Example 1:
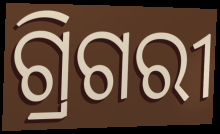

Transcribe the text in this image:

ଗ୍ରିଗରୀ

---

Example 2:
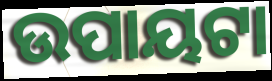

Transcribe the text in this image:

ଉପାୟଟା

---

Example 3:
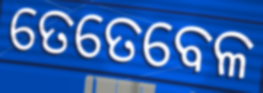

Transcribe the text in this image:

ତେତେବେଳ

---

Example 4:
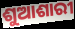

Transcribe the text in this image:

ଶୁଆଶାରୀ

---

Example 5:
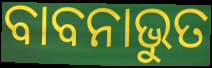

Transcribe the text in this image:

ବାବନାଭୁତ